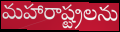
మహారాష్ట్రలను